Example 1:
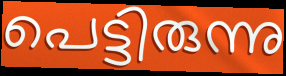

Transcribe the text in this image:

പെട്ടിരുന്നു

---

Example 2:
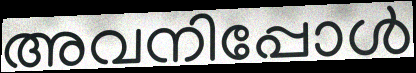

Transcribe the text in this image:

അവനിപ്പോൾ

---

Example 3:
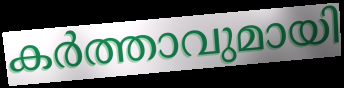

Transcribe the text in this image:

കർത്താവുമായി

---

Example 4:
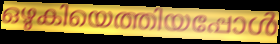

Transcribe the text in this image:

ഒഴുകിയെത്തിയപ്പോൾ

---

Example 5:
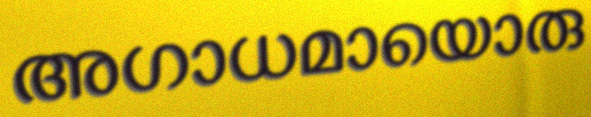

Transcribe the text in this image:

അഗാധമായൊരു